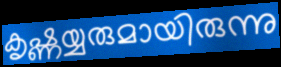
കൃഷ്ണയ്യരുമായിരുന്നു